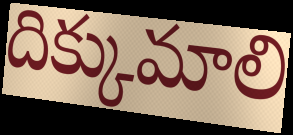
దిక్కుమాలి